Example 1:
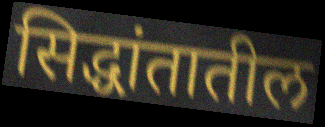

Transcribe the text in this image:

सिद्धांतातील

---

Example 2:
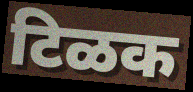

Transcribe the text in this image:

टिळक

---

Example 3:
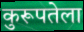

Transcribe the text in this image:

कुरूपतेला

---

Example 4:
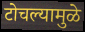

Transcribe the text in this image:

टोचल्यामुळे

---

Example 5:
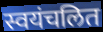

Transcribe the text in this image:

स्वयंचलित